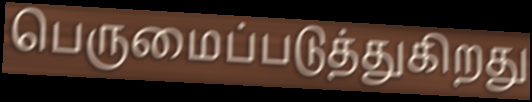
பெருமைப்படுத்துகிறது